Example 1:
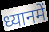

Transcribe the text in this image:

ध्यानमें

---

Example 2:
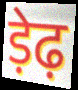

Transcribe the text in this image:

ड़ेढ़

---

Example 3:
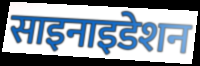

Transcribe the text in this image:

साइनाइडेशन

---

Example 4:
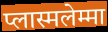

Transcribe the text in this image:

प्लास्मलेम्मा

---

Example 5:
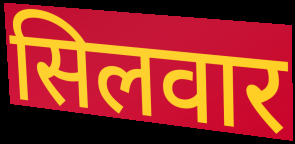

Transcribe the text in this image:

सिलवार